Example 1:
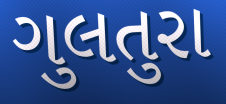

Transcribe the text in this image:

ગુલતુરા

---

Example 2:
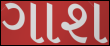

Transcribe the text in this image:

ગાશ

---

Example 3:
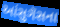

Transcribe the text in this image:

આંસુગૅસના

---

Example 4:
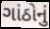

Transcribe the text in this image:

ગાંઠોનું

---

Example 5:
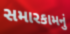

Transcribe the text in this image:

સમારકામનું